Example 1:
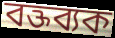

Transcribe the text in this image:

বক্তব্যক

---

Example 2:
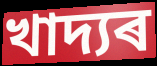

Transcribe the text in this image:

খাদ্যৰ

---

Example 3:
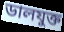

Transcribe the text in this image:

ডালযুক্ত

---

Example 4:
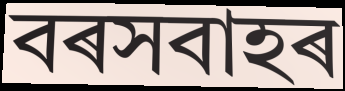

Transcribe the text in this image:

বৰসবাহৰ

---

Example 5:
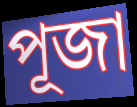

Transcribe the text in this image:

পূজা